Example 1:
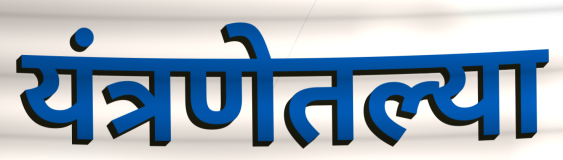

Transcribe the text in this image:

यंत्रणेतल्या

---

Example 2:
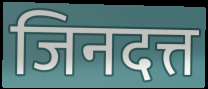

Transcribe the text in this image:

जिनदत्त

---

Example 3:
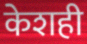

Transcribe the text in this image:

केशही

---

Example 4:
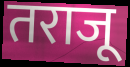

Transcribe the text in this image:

तराजू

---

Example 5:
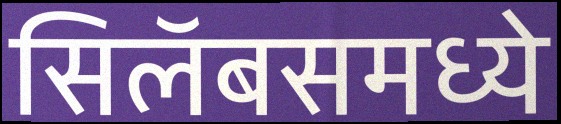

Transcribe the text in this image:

सिलॅबसमध्ये